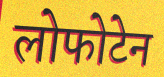
लोफोटेन